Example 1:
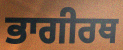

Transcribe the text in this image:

ਭਾਗੀਰਥ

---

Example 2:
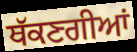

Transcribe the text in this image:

ਥੱਕਣਗੀਆਂ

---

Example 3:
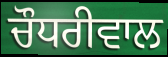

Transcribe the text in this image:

ਚੌਧਰੀਵਾਲ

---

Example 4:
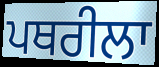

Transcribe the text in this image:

ਪਥਰੀਲਾ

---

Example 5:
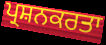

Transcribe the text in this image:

ਪ੍ਰਸ਼ਨਕਰਤਾ